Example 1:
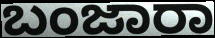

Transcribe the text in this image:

ಬಂಜಾರಾ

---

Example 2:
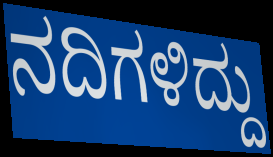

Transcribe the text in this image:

ನದಿಗಳಿದ್ದು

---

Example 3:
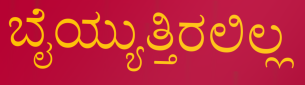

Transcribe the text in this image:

ಬೈಯ್ಯುತ್ತಿರಲಿಲ್ಲ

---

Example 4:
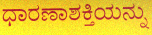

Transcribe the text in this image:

ಧಾರಣಾಶಕ್ತಿಯನ್ನು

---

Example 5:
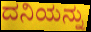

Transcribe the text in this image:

ದನಿಯನ್ನು